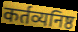
कर्तव्यनिष्ठ